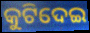
କୁଟିଦେଇ